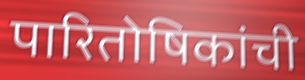
पारितोषिकांची